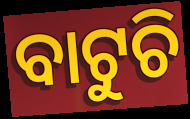
ବାଟୁଚି